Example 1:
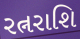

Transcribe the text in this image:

રત્નરાશિ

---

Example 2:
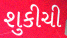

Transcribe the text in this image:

શુકીચી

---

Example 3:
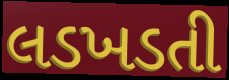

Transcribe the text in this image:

લડખડતી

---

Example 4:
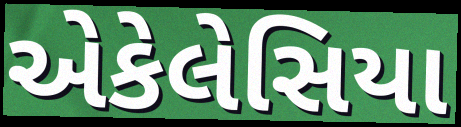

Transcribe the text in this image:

એકેલેસિયા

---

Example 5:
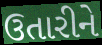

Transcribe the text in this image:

ઉતારીને